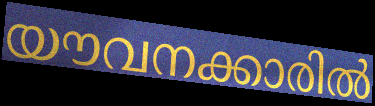
യൗവനക്കാരിൽ